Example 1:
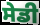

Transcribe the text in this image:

ਸੇਡੀ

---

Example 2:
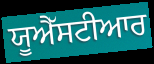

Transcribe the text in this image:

ਯੂਐੱਸਟੀਆਰ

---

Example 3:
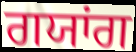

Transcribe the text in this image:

ਗਯਾਂਗ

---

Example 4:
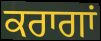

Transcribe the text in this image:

ਕਰਾਗਾਂ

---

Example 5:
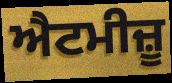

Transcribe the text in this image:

ਐਟਮੀਜ਼ੂ